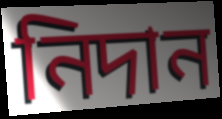
নিদান